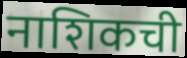
नाशिकची